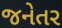
જનેતર